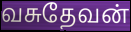
வசுதேவன்